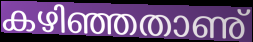
കഴിഞ്ഞതാണു്